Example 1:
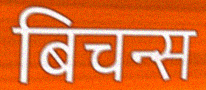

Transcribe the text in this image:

बिचन्स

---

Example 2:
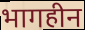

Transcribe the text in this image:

भागहीन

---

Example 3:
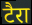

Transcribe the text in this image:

टैरा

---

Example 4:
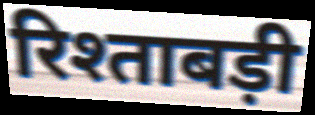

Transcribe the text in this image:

रिश्ताबड़ी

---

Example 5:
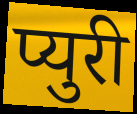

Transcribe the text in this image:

प्युरी